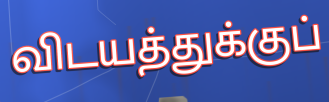
விடயத்துக்குப்